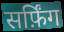
सर्फ़िंग